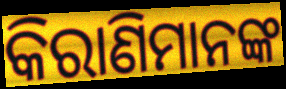
କିରାଣିମାନଙ୍କ